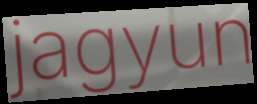
jagyun